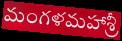
మంగళమహాశ్రీ